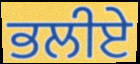
ਭਲੀਏ